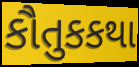
કૌતુકકથા